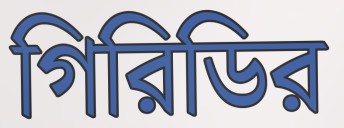
গিরিডির